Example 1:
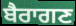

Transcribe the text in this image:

ਬੈਰਾਗਣ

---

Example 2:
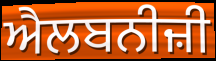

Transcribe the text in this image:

ਐਲਬਨੀਜ਼ੀ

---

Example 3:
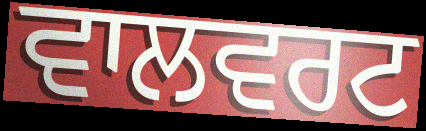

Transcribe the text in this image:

ਵਾਲਵਰਟ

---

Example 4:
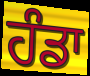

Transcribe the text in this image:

ਹੰਡਾ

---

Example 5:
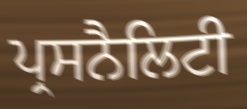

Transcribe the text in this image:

ਪ੍ਰਸਨੈਲਿਟੀ